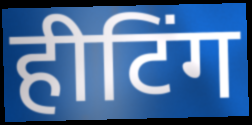
हीटिंग